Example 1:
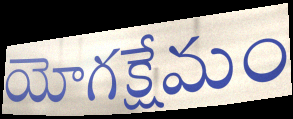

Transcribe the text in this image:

యోగక్షేమం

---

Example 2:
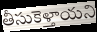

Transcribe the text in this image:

తీసుకెళ్తాయని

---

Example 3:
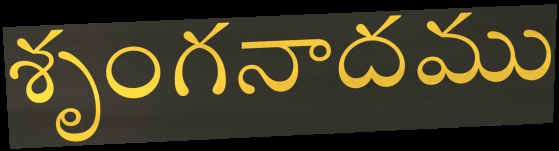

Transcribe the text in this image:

శృంగనాదము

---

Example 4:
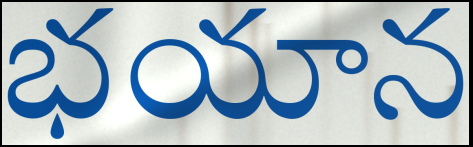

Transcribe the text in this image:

భయాన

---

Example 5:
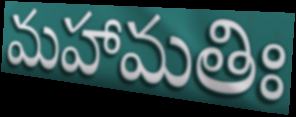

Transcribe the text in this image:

మహామతిః